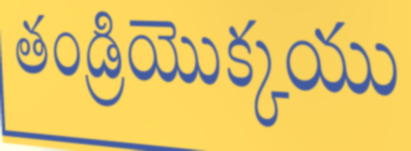
తండ్రియొక్కయు